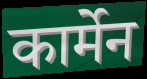
कार्मेन